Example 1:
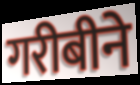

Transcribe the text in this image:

गरीबीने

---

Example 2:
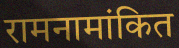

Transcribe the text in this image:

रामनामांकित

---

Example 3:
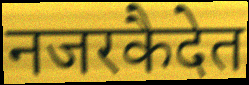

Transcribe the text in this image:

नजरकैदेत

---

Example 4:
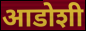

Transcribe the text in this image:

आडोशी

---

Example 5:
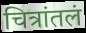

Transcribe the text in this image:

चित्रांतलं